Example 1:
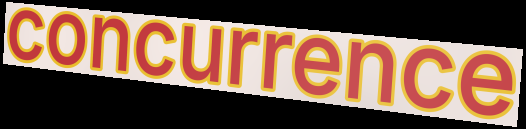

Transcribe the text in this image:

concurrence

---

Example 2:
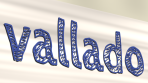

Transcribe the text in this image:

vallado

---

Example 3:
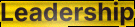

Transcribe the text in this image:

Leadership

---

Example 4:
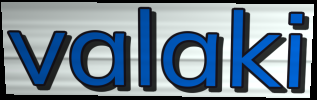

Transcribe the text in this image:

valaki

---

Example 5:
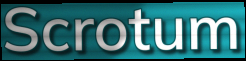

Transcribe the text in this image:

Scrotum